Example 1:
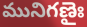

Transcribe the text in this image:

మునిగణైః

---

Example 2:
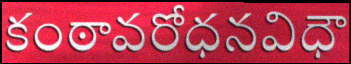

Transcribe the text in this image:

కంఠావరోధనవిధౌ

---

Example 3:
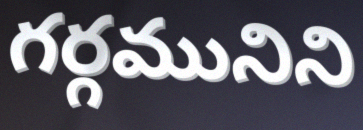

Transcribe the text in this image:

గర్గమునిని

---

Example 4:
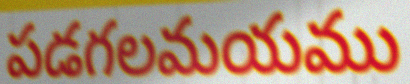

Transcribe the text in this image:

పడగలమయము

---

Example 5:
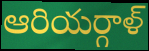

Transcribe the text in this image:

ఆరియర్గాళ్